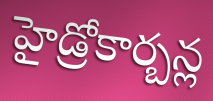
హైడ్రోకార్బన్ల